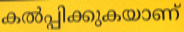
കൽപ്പിക്കുകയാണ്